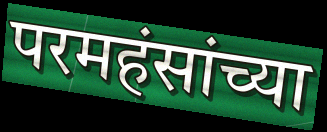
परमहंसांच्या